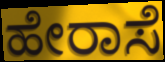
ಹೇರಾಸೆ